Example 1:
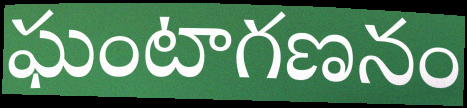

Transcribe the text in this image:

ఘంటాగణనం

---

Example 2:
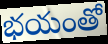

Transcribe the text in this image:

భయంతో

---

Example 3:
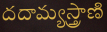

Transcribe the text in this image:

దదామ్యస్త్రాణి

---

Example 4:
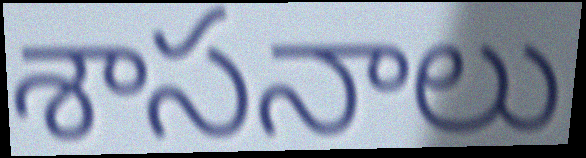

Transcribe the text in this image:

శాసనాలు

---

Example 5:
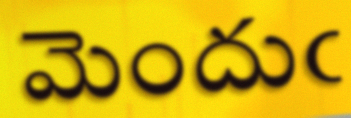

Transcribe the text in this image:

మెందుఁ